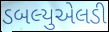
ડબલ્યુએલડી